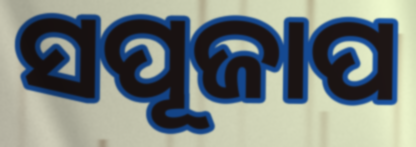
ସପୂଜାପ